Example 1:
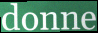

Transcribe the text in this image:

donne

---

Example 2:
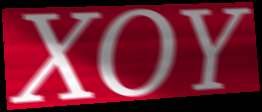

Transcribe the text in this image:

XOY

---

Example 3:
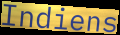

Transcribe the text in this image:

Indiens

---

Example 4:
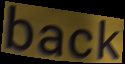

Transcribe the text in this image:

back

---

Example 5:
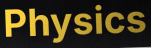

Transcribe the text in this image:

Physics